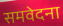
समवेदना